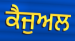
ਕੈਜੁਅਲ